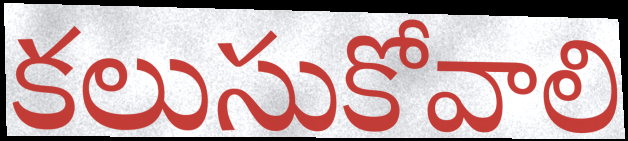
కలుసుకోవాలి